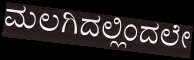
ಮಲಗಿದಲ್ಲಿಂದಲೇ